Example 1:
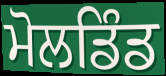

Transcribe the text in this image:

ਮੋਲਡਿੰਡ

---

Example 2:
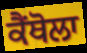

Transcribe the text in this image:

ਕੈਂਥੋਲਾ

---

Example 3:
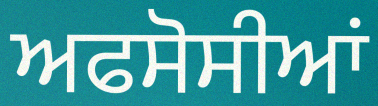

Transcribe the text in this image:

ਅਫਸੋਸੀਆਂ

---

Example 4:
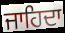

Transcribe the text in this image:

ਜਾਹਿਦਾ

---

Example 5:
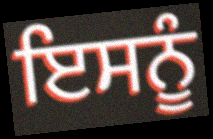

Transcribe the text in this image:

ਇਸਨੂੰ